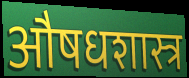
औषधशास्त्र